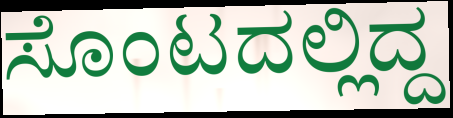
ಸೊಂಟದಲ್ಲಿದ್ದ